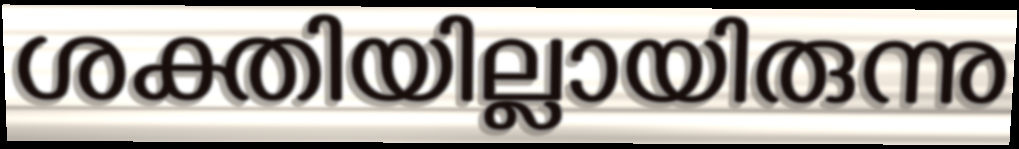
ശക്തിയില്ലായിരുന്നു